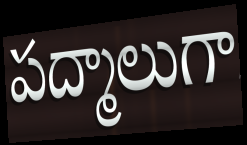
పద్మాలుగా